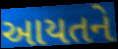
આયતને